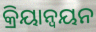
କ୍ରିୟାନ୍ଵୟନ